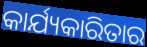
କାର୍ଯ୍ୟକାରିତାର